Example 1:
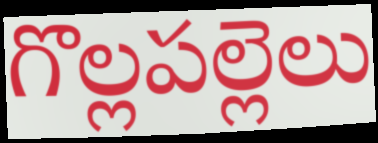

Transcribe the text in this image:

గొల్లపల్లెలు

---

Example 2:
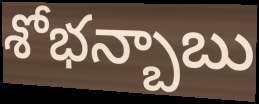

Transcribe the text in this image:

శోభన్బాబు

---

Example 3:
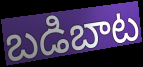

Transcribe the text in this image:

బడిబాట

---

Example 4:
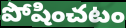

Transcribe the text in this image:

పోషించటం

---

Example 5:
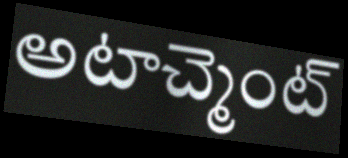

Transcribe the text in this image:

అటాచ్మెంట్